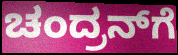
ಚಂದ್ರನ್‌ಗೆ